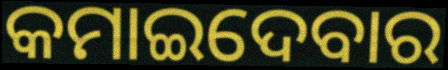
କମାଇଦେବାର